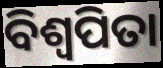
ବିଶ୍ୱପିତା